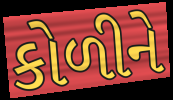
કોળીને